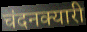
चंदनक्यारी